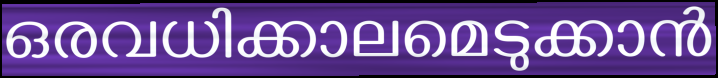
ഒരവധിക്കാലമെടുക്കാൻ